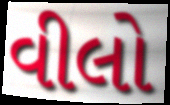
વીલો